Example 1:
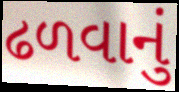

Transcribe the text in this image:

ઢળવાનું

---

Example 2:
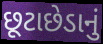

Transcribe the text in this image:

છૂટાછેડાનું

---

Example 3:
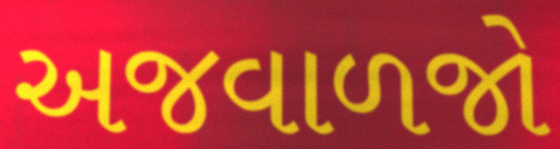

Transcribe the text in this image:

અજવાળજો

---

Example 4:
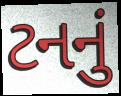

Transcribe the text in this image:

ટનનું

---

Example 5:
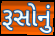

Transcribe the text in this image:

રૂસોનું